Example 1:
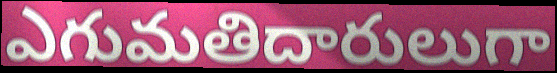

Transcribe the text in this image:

ఎగుమతిదారులుగా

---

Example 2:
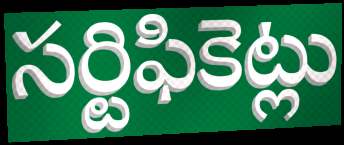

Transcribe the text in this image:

సర్టిఫికెట్లు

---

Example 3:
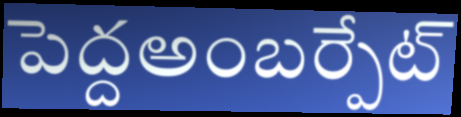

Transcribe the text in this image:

పెద్దఅంబర్పేట్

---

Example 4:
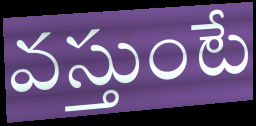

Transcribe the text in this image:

వస్తుంటే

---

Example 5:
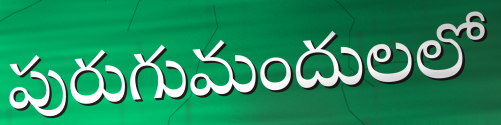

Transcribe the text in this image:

పురుగుమందులలో